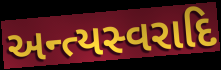
અન્ત્યસ્વરાદિ